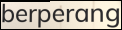
berperang